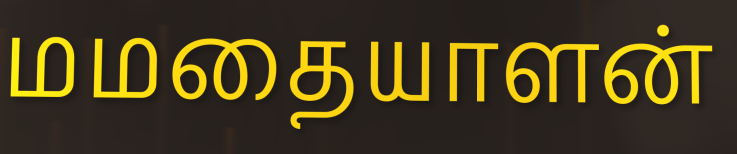
மமதையாளன்